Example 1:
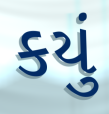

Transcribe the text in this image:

કયું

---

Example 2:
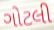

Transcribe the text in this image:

ગોટલી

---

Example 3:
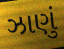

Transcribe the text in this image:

ઝાણું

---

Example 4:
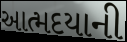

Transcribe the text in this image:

આત્મદયાની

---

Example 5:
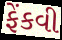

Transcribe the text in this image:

ફેંકવી